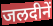
जलदीनें